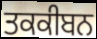
ਤਕਕੀਬਨ